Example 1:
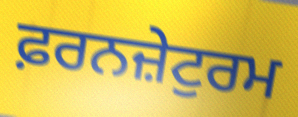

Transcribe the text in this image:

ਫ਼ਰਨਜ਼ੇਟੁਰਮ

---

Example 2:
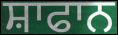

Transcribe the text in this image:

ਸ਼ਾਫਾਨ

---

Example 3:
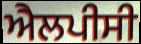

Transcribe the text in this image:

ਐਲਪੀਸੀ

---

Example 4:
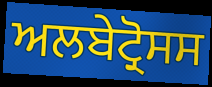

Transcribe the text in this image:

ਅਲਬੇਟ੍ਰੋਸਸ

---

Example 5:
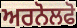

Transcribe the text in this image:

ਅਰਨੋਲਫੋ